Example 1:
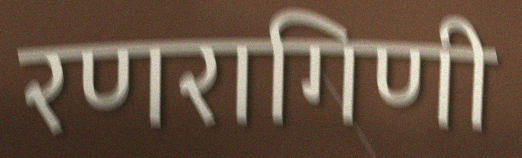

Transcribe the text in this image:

रणरागिणी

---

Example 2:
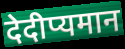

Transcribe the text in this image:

देदीप्यमान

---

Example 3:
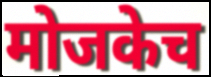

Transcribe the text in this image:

मोजकेच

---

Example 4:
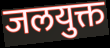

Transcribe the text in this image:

जलयुक्त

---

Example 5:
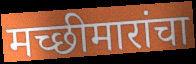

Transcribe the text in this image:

मच्छीमारांचा